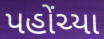
પહોંચ્યા